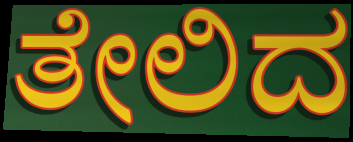
ತೇಲಿದ